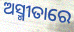
ଅସ୍ମୀତାରେ